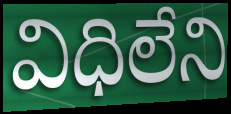
విధిలేని